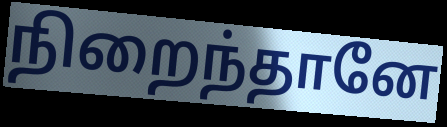
நிறைந்தானே